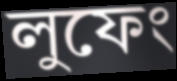
লুফেং